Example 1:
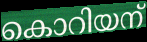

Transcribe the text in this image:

കൊറിയന്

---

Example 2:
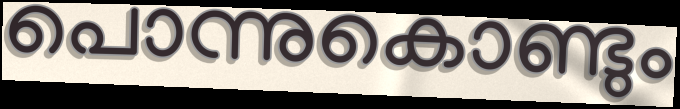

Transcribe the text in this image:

പൊന്നുകൊണ്ടും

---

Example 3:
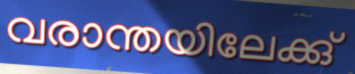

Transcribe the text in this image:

വരാന്തയിലേക്കു്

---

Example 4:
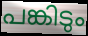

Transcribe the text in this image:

പങ്കിടും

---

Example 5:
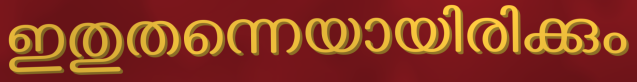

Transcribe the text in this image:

ഇതുതന്നെയായിരിക്കും